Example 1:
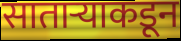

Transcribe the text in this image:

साताऱ्याकडून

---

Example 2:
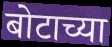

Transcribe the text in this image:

बोटाच्या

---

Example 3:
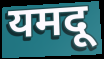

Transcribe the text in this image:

यमदू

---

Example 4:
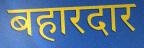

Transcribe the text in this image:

बहारदार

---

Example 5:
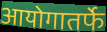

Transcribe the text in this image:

आयोगातर्फे